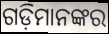
ଗଡ଼ିମାନଙ୍କର